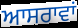
ਆਸਰਾਵਾਂ